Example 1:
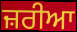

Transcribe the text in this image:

ਜ਼ਰੀਆ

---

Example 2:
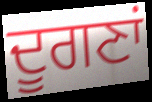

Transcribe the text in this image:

ਦੂਗਣਾਂ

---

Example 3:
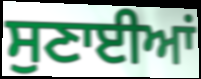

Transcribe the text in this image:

ਸੁਣਾਈਆਂ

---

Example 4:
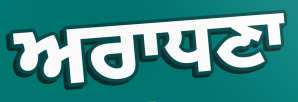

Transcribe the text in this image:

ਅਰਾਧਣਾ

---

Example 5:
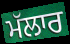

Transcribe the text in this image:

ਮੱਲਾਰ